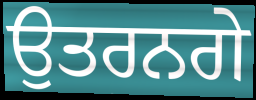
ਉਤਰਨਗੇ